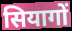
सियागों